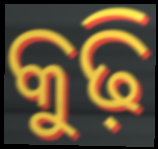
କୁଢ଼ି